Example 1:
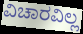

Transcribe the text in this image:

ವಿಚಾರವಿಲ್ಲ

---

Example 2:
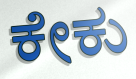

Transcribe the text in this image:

ಕೇಕು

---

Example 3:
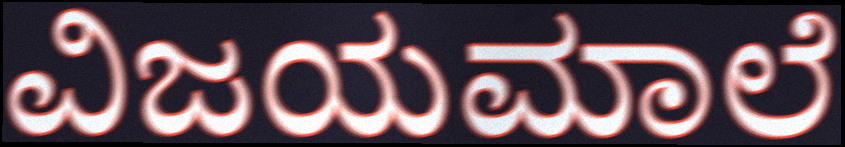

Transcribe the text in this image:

ವಿಜಯಮಾಲೆ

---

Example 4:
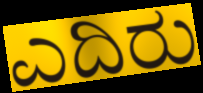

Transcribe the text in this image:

ಎದಿರು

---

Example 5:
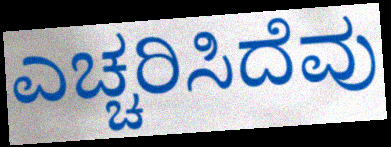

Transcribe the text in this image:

ಎಚ್ಚರಿಸಿದೆವು